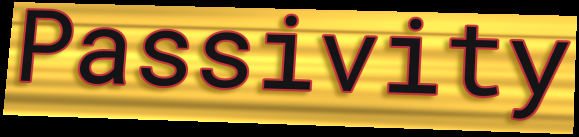
Passivity